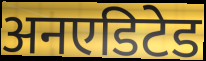
अनएडिटेड